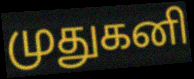
முதுகனி